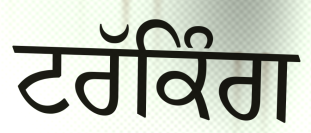
ਟਰੱਕਿੰਗ